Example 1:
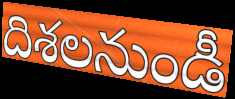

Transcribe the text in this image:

దిశలనుండీ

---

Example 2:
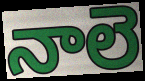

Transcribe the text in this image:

నాలె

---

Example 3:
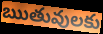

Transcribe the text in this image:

ఋతువులకు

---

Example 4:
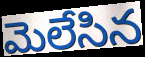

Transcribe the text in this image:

మెలేసిన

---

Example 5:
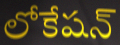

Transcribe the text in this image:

లోకేషన్